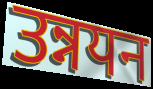
उन्नयन